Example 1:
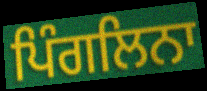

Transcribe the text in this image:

ਪਿੰਗਲਿਨਾ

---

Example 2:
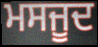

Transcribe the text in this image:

ਮਸਜੂਦ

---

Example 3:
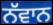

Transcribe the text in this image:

ਨੱਵਾਨ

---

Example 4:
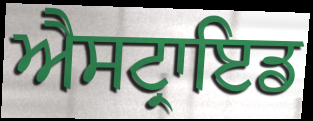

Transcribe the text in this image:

ਐਸਟ੍ਰਾਇਡ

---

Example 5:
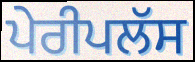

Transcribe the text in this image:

ਪੇਰੀਪਲੱਸ